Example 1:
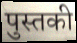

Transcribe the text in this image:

पुस्तकी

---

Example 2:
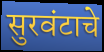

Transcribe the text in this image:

सुरवंटाचे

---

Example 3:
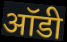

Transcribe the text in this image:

ऑडी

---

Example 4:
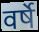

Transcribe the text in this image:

वर्षे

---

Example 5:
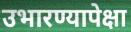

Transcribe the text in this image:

उभारण्यापेक्षा